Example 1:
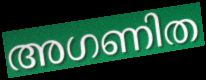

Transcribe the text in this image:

അഗണിത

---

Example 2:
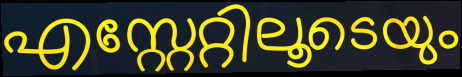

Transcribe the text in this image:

എസ്റ്റേറ്റിലൂടെയും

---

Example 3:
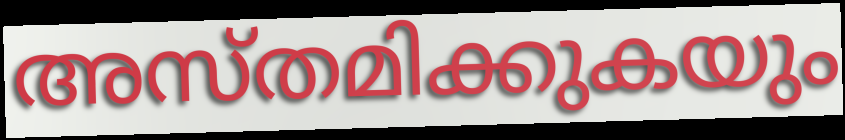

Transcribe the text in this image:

അസ്തമിക്കുകയും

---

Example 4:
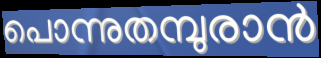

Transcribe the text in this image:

പൊന്നുതമ്പുരാൻ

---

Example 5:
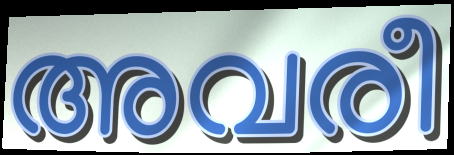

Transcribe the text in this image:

അവരീ